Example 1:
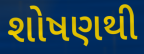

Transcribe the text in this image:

શોષણથી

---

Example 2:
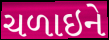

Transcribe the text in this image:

ચળાઇને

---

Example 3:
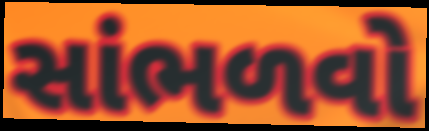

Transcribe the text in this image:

સાંભળવો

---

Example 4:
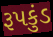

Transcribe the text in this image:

રૂપકુંડ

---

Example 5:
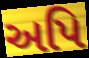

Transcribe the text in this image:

અપિ